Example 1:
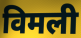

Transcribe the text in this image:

विमली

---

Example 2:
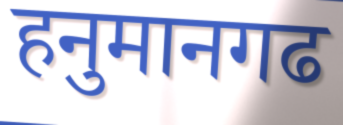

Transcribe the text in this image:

हनुमानगढ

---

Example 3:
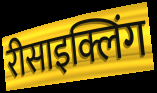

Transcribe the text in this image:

रीसाइक्लिंग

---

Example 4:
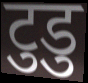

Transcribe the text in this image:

टुडु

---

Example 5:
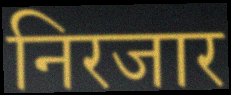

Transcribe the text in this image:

निरजार